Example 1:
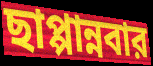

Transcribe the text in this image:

ছাপ্পান্নবার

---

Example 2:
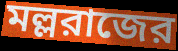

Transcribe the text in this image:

মল্লরাজের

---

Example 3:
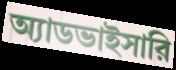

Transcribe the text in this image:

অ্যাডভাইসারি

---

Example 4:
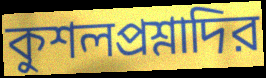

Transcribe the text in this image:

কুশলপ্রশ্নাদির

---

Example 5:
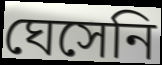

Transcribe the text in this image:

ঘেসেনি